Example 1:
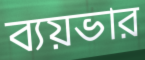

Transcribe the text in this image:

ব্যয়ভার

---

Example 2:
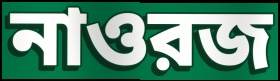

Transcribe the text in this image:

নাওরজ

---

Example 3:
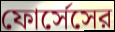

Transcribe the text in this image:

ফোর্সেসের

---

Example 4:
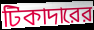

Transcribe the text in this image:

টিকাদারের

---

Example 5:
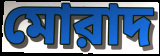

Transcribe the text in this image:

মোরাদ